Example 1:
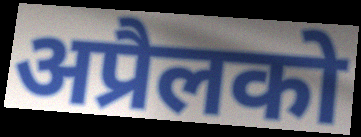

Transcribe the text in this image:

अप्रैलको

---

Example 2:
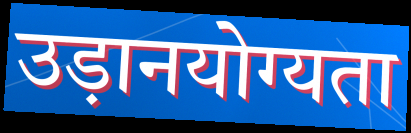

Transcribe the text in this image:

उड़ानयोग्यता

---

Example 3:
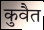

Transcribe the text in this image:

कुवैत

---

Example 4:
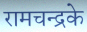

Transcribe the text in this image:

रामचन्द्रके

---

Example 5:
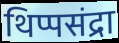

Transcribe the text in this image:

थिप्पसंद्रा